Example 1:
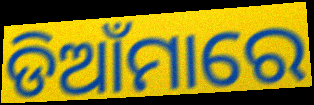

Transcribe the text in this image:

ଡିଆଁମାରେ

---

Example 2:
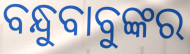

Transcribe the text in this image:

ବନ୍ଧୁବାବୁଙ୍କର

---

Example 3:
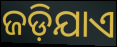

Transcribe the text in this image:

ଜଡ଼ିଯାଏ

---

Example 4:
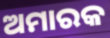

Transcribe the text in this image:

ଅମାରକ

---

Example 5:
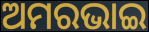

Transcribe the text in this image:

ଅମରଭାଇ